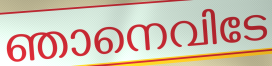
ഞാനെവിടേ